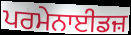
ਪਰਮੇਨਾਈਡਜ਼